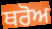
ਥਰੋਅ